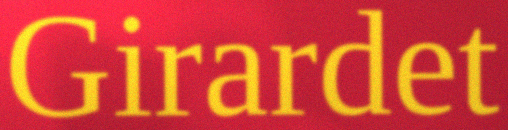
Girardet